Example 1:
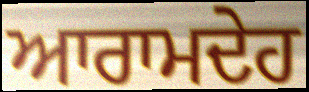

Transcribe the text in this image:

ਆਰਾਮਦੇਹ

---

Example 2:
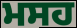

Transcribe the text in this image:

ਮਸਹ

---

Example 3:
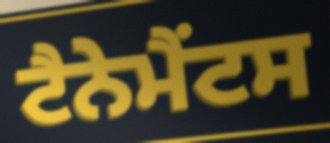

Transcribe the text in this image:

ਟੈਨੇਮੈਂਟਸ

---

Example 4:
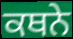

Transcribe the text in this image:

ਕਥਨੇ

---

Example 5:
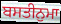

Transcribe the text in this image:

ਬਸਤੀਨੁਮਾ